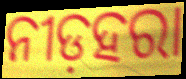
ନୀଡ଼ହରା